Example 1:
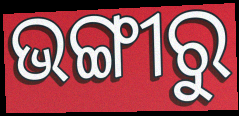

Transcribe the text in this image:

ଭଙ୍ଗୀରୁ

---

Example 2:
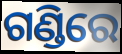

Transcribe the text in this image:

ଗଣ୍ଡିରେ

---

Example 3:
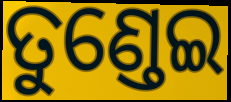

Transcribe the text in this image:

ତୁଣ୍ଡେଇ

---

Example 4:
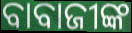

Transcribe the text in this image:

ବାବାଜୀଙ୍କ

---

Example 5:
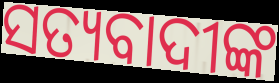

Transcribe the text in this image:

ସତ୍ୟବାଦୀଙ୍କ